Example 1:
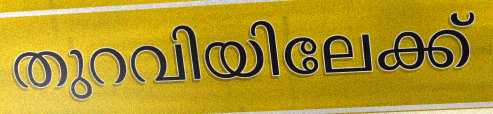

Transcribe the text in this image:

തുറവിയിലേക്ക്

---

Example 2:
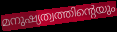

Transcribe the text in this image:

മനുഷ്യത്വത്തിന്റെയും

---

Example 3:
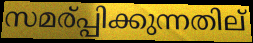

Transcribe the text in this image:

സമര്പ്പിക്കുന്നതില്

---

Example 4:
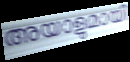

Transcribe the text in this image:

അയാളുമായി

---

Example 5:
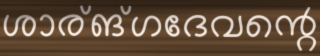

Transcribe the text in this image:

ശാര്ങ്ഗദേവന്റെ